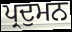
ਪ੍ਰਦੁਮਨ